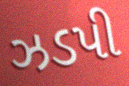
ઝડપી